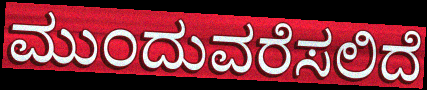
ಮುಂದುವರೆಸಲಿದೆ